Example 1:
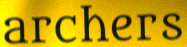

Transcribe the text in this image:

archers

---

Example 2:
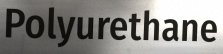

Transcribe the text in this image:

Polyurethane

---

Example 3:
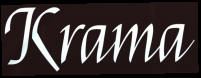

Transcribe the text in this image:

Krama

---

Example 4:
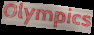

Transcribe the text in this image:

Olympics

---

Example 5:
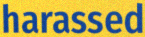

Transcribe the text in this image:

harassed